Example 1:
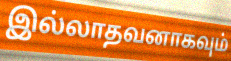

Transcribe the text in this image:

இல்லாதவனாகவும்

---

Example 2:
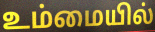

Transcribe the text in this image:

உம்மையில்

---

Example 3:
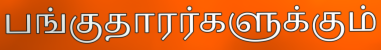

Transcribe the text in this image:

பங்குதாரர்களுக்கும்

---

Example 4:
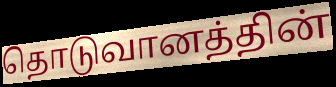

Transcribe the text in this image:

தொடுவானத்தின்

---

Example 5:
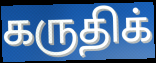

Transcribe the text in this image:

கருதிக்